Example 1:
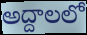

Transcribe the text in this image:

అద్దాలలో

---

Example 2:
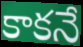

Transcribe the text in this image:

కాకనే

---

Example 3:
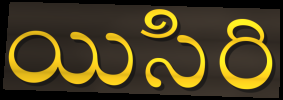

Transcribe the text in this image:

యిసిరి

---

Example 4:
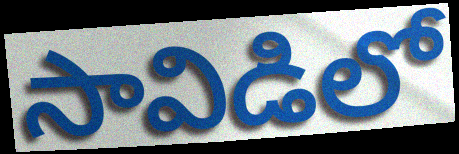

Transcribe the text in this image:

సావిడిలో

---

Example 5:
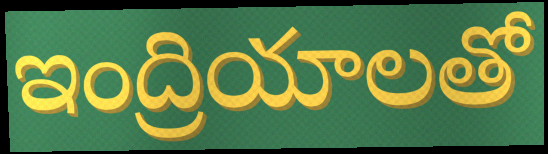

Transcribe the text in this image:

ఇంద్రియాలతో